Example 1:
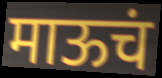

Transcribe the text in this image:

माऊचं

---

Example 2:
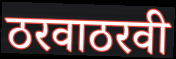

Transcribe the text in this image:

ठरवाठरवी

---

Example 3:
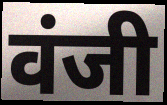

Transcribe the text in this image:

वंजी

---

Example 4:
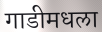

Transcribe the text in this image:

गाडीमधला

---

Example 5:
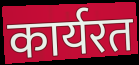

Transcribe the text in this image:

कार्यरत